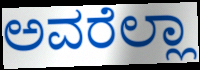
ಅವರೆಲ್ಲಾ